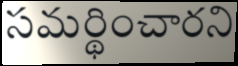
సమర్థించారని